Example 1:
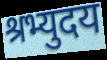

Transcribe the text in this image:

श्रभ्युदय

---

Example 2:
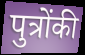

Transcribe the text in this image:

पुत्रोंकी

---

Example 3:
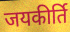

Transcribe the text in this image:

जयकीर्ति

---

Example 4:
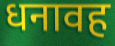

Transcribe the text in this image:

धनावह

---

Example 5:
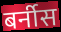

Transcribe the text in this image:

बर्नीस